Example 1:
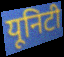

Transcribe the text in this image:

यूनिटी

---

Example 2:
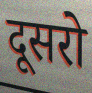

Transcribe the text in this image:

दूसरो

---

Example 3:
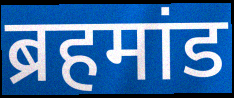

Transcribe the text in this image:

ब्रहमांड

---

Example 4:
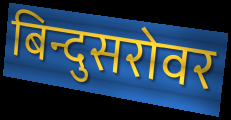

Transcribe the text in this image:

बिन्दुसरोवर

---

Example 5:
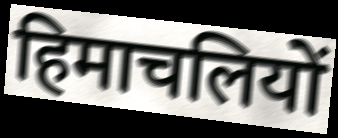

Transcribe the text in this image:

हिमाचलियों